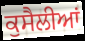
ਕੁਸੈਲੀਆਂ